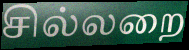
சில்லறை